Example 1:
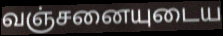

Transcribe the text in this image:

வஞ்சனையுடைய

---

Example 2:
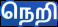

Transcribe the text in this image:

நெறி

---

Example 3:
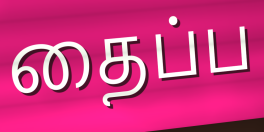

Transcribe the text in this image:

தைப்ப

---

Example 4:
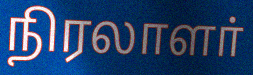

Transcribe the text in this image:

நிரலாளர்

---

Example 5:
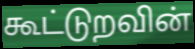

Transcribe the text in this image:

கூட்டுறவின்